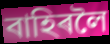
বাহিৰলৈ